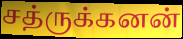
சத்ருக்கனன்